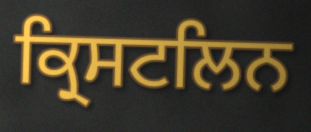
ਕ੍ਰਿਸਟਲਿਨ